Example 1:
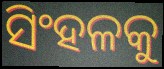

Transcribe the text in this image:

ସିଂହଳକୁ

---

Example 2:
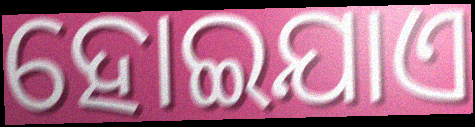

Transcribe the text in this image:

ହୋଇଯାଏ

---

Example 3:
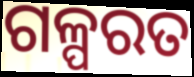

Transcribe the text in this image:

ଗଳ୍ପରତ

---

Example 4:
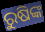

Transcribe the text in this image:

ରୁଷିଙ୍କ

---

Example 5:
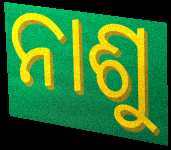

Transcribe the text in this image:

ନାଶୁ